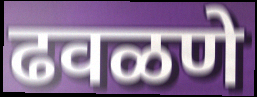
ढवळणे